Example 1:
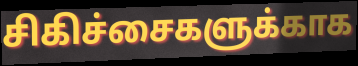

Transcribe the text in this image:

சிகிச்சைகளுக்காக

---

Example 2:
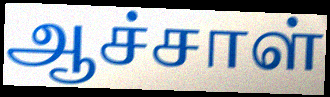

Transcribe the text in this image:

ஆச்சாள்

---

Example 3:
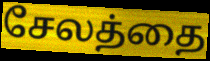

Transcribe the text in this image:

சேலத்தை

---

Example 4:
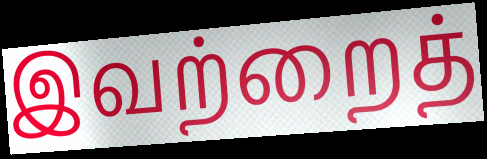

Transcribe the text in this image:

இவற்றைத்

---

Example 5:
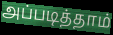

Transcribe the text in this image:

அப்படித்தாம்